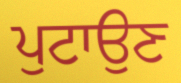
ਪੁਟਾਉਣ